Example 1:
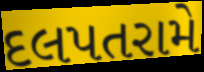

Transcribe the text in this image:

દલપતરામે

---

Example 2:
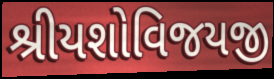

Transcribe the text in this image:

શ્રીયશોવિજયજી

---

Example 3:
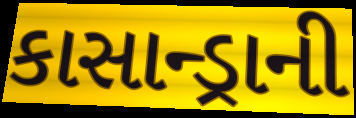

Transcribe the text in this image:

કાસાન્ડ્રાની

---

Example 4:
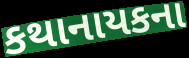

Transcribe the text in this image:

કથાનાયકના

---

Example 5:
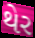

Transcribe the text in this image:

થેર